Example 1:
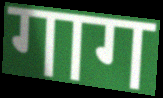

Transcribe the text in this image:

गाग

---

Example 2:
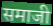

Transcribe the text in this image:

समाजी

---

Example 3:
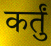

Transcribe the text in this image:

कर्तुं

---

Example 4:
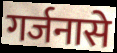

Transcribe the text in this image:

गर्जनासे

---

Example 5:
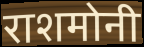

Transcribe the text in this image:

राशमोनी